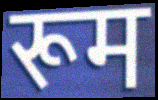
रूम